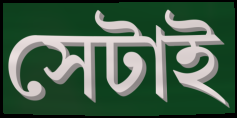
সেটাই